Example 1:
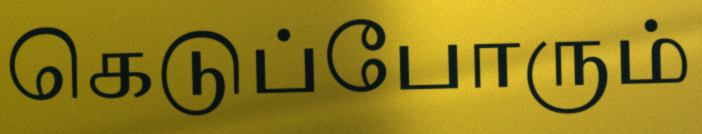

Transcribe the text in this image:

கெடுப்போரும்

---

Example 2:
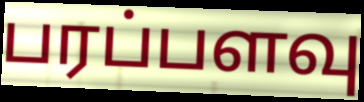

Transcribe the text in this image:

பரப்பளவு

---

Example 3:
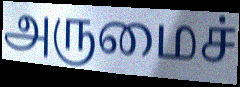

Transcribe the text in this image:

அருமைச்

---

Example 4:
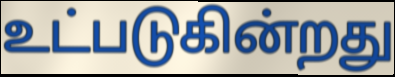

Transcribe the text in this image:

உட்படுகின்றது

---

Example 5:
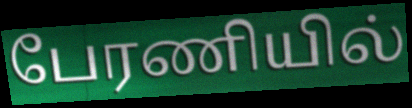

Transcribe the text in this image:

பேரணியில்